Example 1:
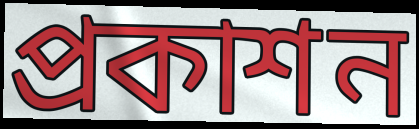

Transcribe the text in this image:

প্রকাশন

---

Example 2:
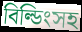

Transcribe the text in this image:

বিল্ডিংসহ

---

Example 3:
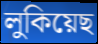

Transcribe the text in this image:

লুকিয়েছ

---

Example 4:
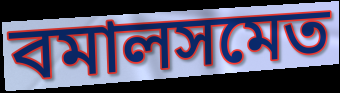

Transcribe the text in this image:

বমালসমেত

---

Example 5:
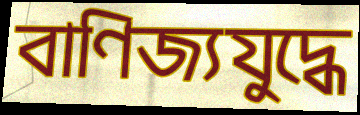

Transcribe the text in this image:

বাণিজ্যযুদ্ধে